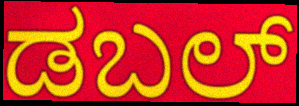
ಡಬಲ್